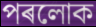
পৰলোক